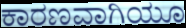
ಕಾರಣವಾಗಿಯೂ